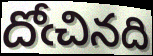
దోఁచినది